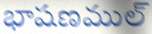
భాషణముల్